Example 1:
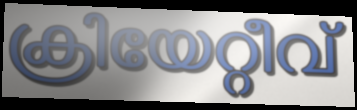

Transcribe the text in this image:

ക്രിയേറ്റീവ്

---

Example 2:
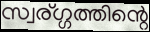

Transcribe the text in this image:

സ്വര്ഗ്ഗത്തിന്റെ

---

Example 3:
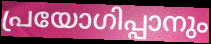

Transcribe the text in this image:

പ്രയോഗിപ്പാനും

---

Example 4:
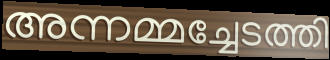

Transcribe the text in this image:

അന്നമ്മച്ചേടത്തി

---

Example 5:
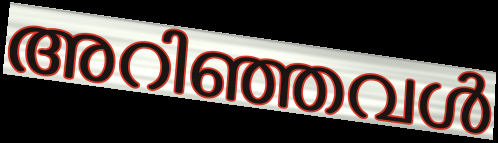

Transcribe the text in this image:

അറിഞ്ഞവൾ